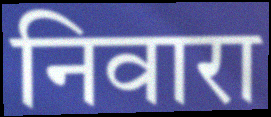
निवारा